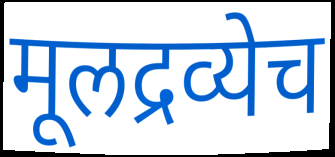
मूलद्रव्येच